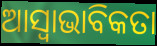
ଆସ୍ବାଭାବିକତା